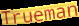
Trueman